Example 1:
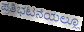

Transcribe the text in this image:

ಪ್ರತಿಭಟನೆಯಲ್ಲೂ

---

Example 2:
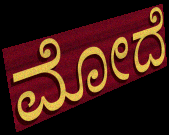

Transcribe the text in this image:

ಮೋದೆ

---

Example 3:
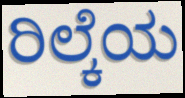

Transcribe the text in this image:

ರಿಲ್ಕೆಯ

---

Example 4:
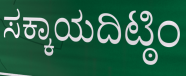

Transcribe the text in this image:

ಸಕ್ಕಾಯದಿಟ್ಠಿಂ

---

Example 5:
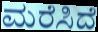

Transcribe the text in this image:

ಮರೆಸಿದೆ